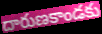
దారుణకాండకు